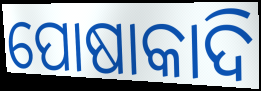
ପୋଷାକାଦି